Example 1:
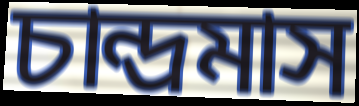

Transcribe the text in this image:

চান্দ্রমাস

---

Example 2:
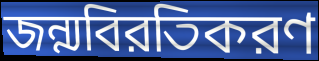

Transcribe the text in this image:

জন্মবিরতিকরণ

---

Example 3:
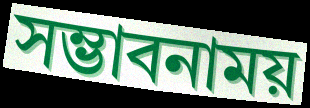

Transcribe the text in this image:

সম্ভাবনাময়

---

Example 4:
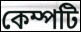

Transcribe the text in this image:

কেম্পটি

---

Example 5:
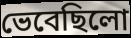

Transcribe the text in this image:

ভেবেছিলো